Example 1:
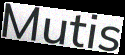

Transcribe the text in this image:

Mutis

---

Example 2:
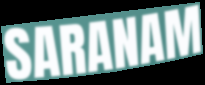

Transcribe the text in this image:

SARANAM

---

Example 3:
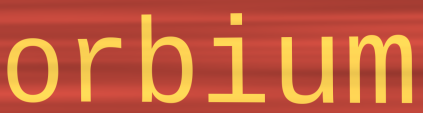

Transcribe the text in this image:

orbium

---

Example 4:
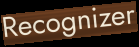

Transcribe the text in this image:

Recognizer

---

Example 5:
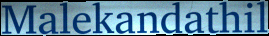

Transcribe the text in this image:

Malekandathil